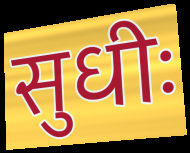
सुधीः